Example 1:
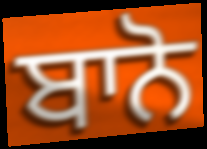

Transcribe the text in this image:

ਬਾਨੋ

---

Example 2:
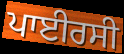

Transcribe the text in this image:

ਪਾਈਰਸੀ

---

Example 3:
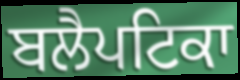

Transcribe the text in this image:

ਬਲੈਪਟਿਕਾ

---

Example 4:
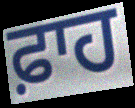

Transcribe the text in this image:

ਫ਼ਾਹ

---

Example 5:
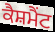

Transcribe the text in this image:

ਕੈਸ਼ਮੈਂਟ